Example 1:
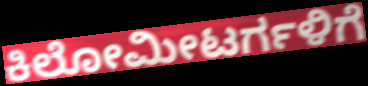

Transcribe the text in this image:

ಕಿಲೋಮೀಟರ್ಗಳಿಗೆ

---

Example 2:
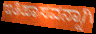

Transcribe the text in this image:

ಇತಿಹಾಸವನ್ನಾಗಿ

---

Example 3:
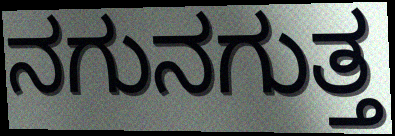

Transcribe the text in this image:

ನಗುನಗುತ್ತ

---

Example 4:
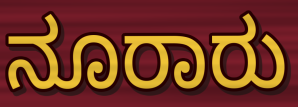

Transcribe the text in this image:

ನೂರಾರು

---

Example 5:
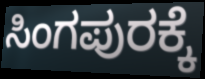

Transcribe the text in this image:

ಸಿಂಗಪುರಕ್ಕೆ